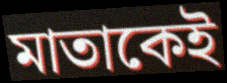
মাতাকেই